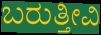
ಬರುತ್ತೀವಿ